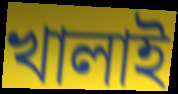
খালাই